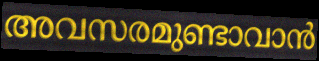
അവസരമുണ്ടാവാൻ